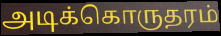
அடிக்கொருதரம்